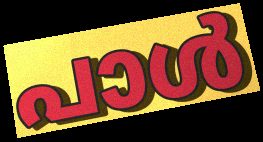
പാൾ